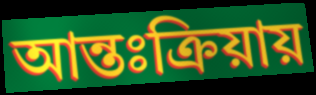
আন্তঃক্রিয়ায়